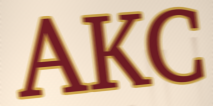
AKC